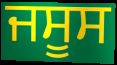
ਜਸੂਸ